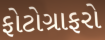
ફોટોગ્રાફરો